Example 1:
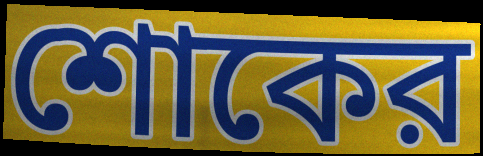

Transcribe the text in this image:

শোকের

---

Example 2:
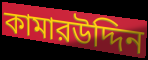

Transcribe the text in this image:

কামারউদ্দিন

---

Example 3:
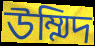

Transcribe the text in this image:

উম্মিদ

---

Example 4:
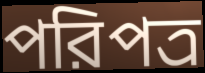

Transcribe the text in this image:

পরিপত্র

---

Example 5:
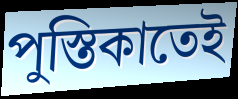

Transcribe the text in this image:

পুস্তিকাতেই